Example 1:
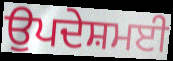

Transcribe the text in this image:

ਉਪਦੇਸ਼ਮਈ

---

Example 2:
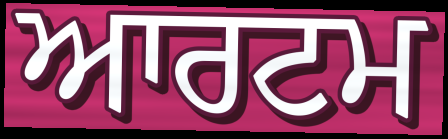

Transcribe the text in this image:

ਆਰਟਮ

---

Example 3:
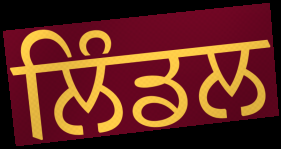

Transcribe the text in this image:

ਲਿੰਡਲ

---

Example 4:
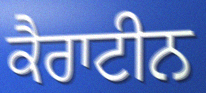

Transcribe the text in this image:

ਕੈਰਾਟੀਨ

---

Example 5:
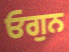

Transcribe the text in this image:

ਓਗੁਨ